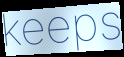
keeps